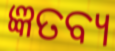
ଜ୍ଞତବ୍ୟ